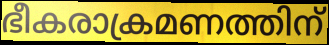
ഭീകരാക്രമണത്തിന്